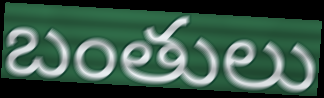
బంతులు